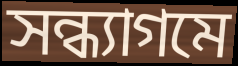
সন্ধ্যাগমে